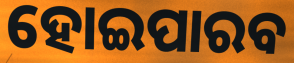
ହୋଇପାରବ